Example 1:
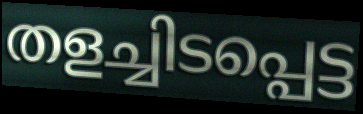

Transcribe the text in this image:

തളച്ചിടപ്പെട്ട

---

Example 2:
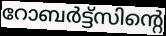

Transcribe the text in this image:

റോബർട്ട്സിന്റെ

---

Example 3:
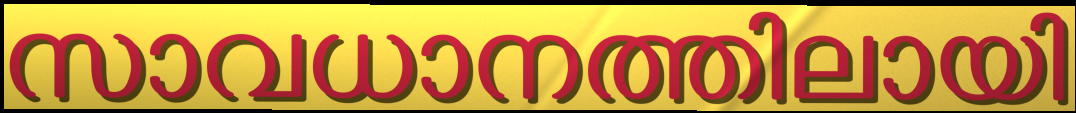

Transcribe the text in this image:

സാവധാനത്തിലായി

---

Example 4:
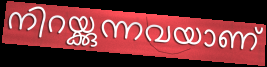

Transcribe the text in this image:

നിറയ്ക്കുന്നവയാണ്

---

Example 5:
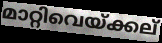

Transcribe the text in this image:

മാറ്റിവെയ്ക്കല്